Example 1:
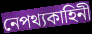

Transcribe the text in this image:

নেপথ্যকাহিনী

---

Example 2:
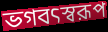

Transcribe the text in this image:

ভগবৎস্বরূপ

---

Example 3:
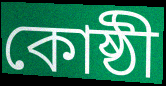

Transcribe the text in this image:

কোষ্ঠী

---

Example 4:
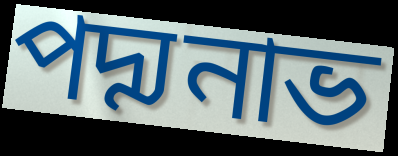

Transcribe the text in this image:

পদ্মনাভ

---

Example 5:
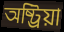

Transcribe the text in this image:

অষ্ট্রিয়া